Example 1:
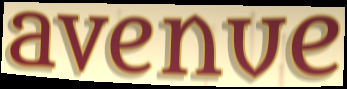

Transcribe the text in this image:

avenue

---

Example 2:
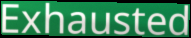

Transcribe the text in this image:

Exhausted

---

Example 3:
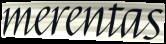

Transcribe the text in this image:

merentas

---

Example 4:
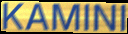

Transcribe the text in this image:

KAMINI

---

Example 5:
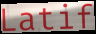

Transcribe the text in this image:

Latif